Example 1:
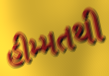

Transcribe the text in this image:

હીમ્મતથી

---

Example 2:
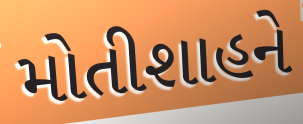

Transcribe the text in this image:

મોતીશાહને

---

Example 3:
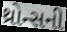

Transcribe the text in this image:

થ્રોન્સની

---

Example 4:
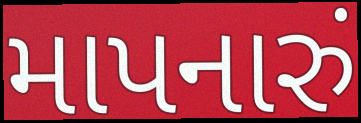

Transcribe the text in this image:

માપનારું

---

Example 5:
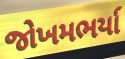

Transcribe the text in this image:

જોખમભર્યા